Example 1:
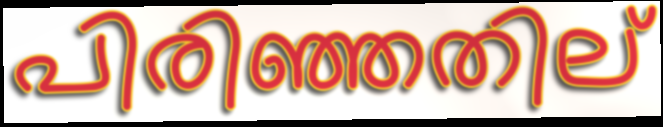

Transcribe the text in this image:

പിരിഞ്ഞതില്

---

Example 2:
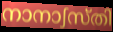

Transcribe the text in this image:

നാനാഽസ്തി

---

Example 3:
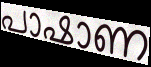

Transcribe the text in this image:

പാഷാണ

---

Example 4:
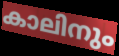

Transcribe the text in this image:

കാലിനും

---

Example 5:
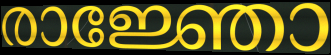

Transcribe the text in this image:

രാജ്ഞോ